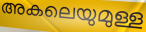
അകലെയുമുള്ള